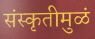
संस्कृतीमुळं